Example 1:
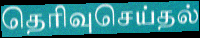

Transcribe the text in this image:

தெரிவுசெய்தல்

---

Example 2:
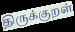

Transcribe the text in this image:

திருக்குறள்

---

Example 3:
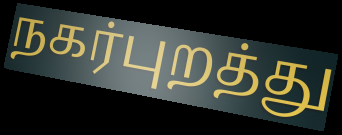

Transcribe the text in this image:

நகர்புறத்து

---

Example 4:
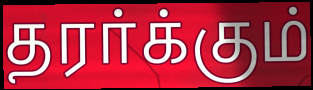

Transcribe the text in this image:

தரர்க்கும்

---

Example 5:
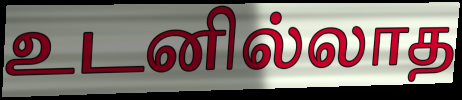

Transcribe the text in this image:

உடனில்லாத